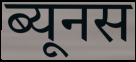
ब्यूनस